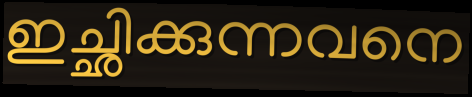
ഇച്ഛിക്കുന്നവനെ